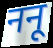
ननू